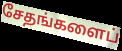
சேதங்களைப்